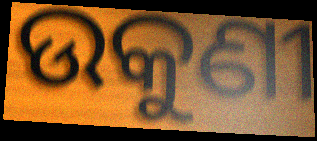
ଉକୁଣୀ